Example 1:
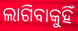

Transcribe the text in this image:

ଲାଗିବାକୁହିଁ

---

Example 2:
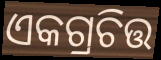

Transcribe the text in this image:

ଏକଗ୍ରଚିତ୍ତ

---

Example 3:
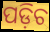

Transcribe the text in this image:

ପଡ଼ିଚ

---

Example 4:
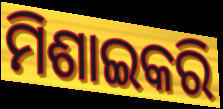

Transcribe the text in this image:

ମିଶାଇକରି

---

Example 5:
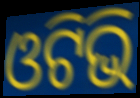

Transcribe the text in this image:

ଓଟିଭି